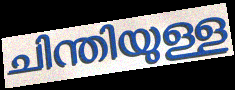
ചിന്തിയുള്ള